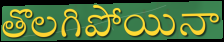
తొలగిపోయినా